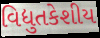
વિદ્યુતકેશીય